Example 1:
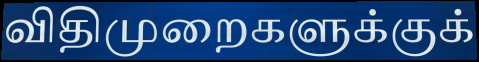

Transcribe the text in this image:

விதிமுறைகளுக்குக்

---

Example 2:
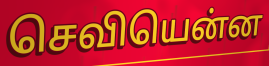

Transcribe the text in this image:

செவியென்ன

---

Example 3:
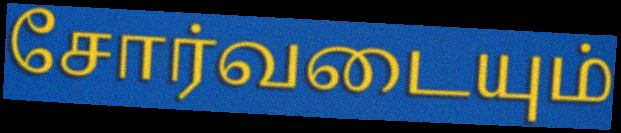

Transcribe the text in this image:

சோர்வடையும்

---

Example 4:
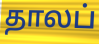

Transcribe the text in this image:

தாலப்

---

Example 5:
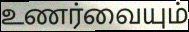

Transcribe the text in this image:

உணர்வையும்